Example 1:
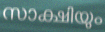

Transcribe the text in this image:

സാക്ഷിയും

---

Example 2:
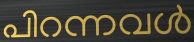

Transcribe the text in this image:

പിറന്നവൾ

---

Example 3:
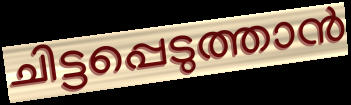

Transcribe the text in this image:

ചിട്ടപ്പെടുത്താൻ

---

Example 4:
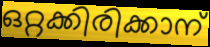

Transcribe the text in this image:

ഒറ്റക്കിരിക്കാന്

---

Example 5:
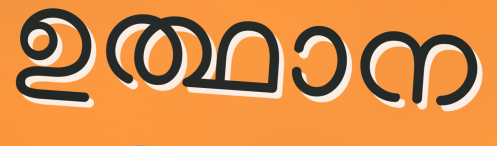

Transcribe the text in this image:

ഉത്ഥാന